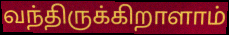
வந்திருக்கிறாளாம்